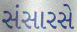
સંસારસે